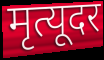
मृत्यूदर